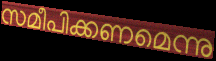
സമീപിക്കണമെന്നു